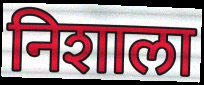
निशाला